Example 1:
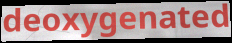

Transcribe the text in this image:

deoxygenated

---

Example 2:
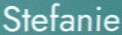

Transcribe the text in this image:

Stefanie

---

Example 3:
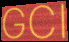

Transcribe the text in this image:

GCI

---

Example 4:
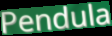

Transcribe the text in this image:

Pendula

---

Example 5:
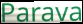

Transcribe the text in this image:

Parava